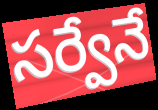
సర్వేనే